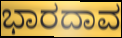
ಭಾರದಾವ